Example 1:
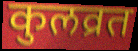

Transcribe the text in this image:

कुलव्रत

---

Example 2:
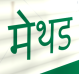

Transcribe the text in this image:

मेथड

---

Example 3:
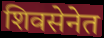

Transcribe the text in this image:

शिवसेनेत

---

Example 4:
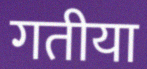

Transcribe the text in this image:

गतीया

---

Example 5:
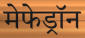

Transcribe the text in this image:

मेफेड्रॉन